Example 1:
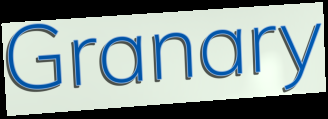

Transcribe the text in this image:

Granary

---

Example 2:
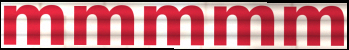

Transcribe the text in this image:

mmmmm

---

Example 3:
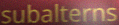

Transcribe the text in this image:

subalterns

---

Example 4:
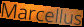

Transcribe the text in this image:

Marcellus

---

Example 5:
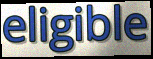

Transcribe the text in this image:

eligible